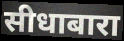
सीधाबारा